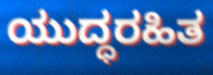
ಯುದ್ಧರಹಿತ